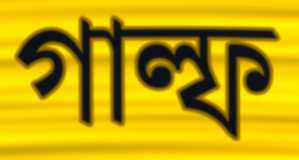
গাল্ফ